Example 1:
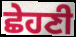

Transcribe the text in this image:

ਛੇਹਣੀ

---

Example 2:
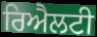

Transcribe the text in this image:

ਰਿਐਲਟੀ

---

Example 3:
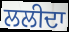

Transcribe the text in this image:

ਲਲੀਦਾ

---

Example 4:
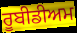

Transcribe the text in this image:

ਰੂਬੀਡੀਅਮ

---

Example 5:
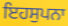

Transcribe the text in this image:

ਇਹਸੁਪਨਾ